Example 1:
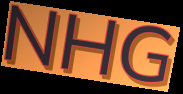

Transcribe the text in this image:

NHG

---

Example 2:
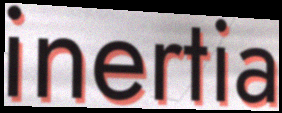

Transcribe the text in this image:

inertia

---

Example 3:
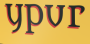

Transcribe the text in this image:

ypur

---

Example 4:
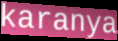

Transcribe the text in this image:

karanya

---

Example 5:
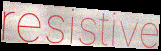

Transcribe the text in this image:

resistive